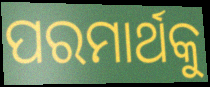
ପରମାର୍ଥକୁ